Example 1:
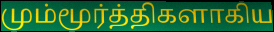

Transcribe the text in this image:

மும்மூர்த்திகளாகிய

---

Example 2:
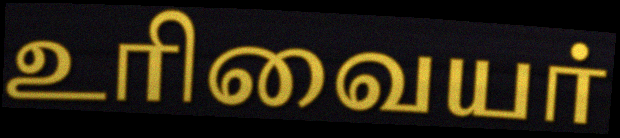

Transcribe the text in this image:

உரிவையர்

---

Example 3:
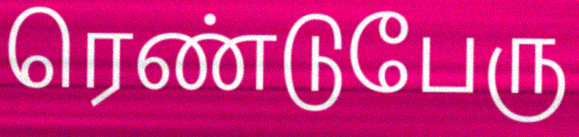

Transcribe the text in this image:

ரெண்டுபேரு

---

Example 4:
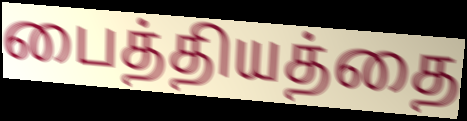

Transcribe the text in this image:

பைத்தியத்தை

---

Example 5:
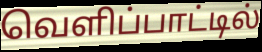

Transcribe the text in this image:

வெளிப்பாட்டில்